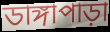
ডাঙ্গাপাড়া